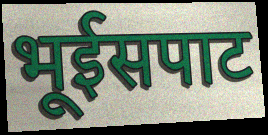
भूईसपाट